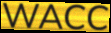
WACC